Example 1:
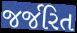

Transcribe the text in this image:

જર્જરિત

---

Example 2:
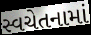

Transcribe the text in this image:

સ્વચેતનામાં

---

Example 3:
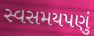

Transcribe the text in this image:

સ્વસમયપણું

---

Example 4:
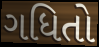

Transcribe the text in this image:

ગધિતો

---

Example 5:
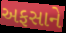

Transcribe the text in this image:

અફસાને